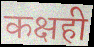
कक्षही